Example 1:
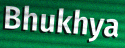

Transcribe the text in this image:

Bhukhya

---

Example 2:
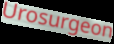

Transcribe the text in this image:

Urosurgeon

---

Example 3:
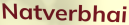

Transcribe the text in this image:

Natverbhai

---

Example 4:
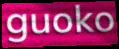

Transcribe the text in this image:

guoko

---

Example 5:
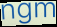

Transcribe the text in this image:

ngm